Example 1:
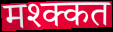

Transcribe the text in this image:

मश्क्कत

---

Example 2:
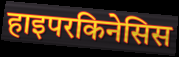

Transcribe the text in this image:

हाइपरकिनेसिस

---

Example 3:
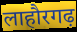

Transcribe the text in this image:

लाहौरगढ़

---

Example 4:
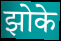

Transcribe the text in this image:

झोके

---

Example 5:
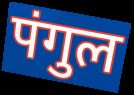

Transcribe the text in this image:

पंगुल